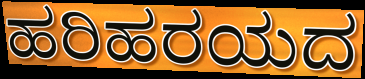
ಹರಿಹರಯದ